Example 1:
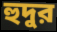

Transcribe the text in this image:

হুদুর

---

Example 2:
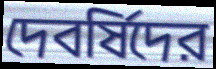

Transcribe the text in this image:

দেবর্ষিদের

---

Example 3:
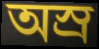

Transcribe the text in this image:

অস্র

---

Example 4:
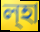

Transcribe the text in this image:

ল্হা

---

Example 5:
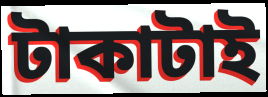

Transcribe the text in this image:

টাকাটাই